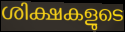
ശിക്ഷകളുടെ